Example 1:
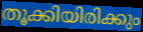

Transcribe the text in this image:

തൂക്കിയിരിക്കും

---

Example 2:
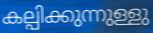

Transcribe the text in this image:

കല്പിക്കുന്നുള്ളു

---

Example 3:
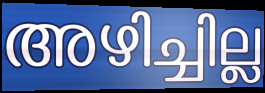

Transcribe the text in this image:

അഴിച്ചില്ല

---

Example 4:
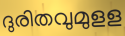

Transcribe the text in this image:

ദുരിതവുമുളള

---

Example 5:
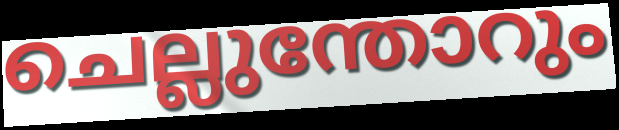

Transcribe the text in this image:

ചെല്ലുന്തോറും